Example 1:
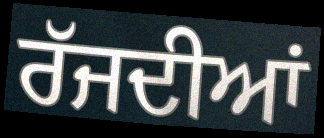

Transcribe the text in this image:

ਰੱਜਦੀਆਂ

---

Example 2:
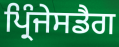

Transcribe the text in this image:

ਪ੍ਰਿੰਜੇਸਡੈਗ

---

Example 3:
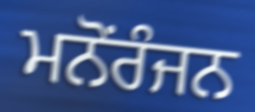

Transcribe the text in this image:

ਮਨੋਂਰੰਜਨ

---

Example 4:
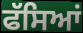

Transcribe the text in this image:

ਫੱਸਿਆਂ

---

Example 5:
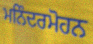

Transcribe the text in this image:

ਮਨਿੰਦਰਮੋਹਨ